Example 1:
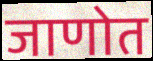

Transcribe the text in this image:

जाणोत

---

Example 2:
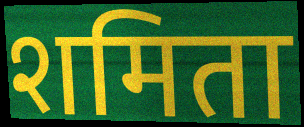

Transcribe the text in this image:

शमिता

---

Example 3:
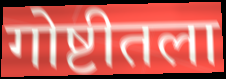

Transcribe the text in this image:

गोष्टीतला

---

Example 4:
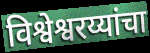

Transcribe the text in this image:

विश्वेश्वरय्यांचा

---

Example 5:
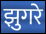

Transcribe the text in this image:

झुगरे